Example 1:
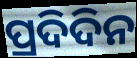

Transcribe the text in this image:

ପ୍ରଦିଦିନ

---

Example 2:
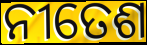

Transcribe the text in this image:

ନୀତେଶ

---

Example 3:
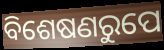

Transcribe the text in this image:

ବିଶେଷଣରୁପେ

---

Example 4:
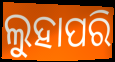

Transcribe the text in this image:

ଲୁହାପରି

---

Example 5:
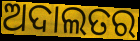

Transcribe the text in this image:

ଅଦାଲତର